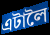
এটালৈ